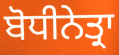
ਬੋਧੀਨੇਤ੍ਰਾ